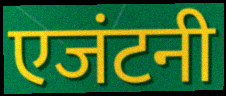
एजंटनी